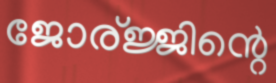
ജോര്ജ്ജിന്റെ